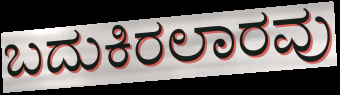
ಬದುಕಿರಲಾರವು